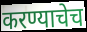
करण्याचेच